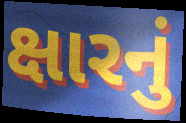
ક્ષારનું